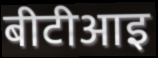
बीटीआइ